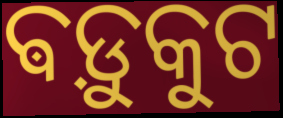
ଵଡ଼ୁକୁଟ